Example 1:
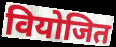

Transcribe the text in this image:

वियोजित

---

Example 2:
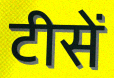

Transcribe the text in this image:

टीसें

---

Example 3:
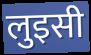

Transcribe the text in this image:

लुइसी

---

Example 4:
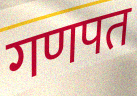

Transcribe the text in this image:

गणपत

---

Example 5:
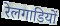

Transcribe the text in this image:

रेलगाडियों